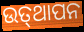
ଉତ୍‌ଥାପନ